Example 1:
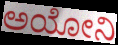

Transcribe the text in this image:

ಅಯೋನಿ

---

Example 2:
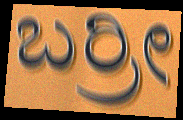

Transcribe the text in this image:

ಬರ್ರೀ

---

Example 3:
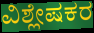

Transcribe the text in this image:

ವಿಶ್ಲೇಷಕರ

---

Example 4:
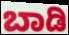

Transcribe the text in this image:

ಬಾಡಿ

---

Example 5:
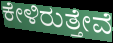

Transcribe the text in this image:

ಕೇಳಿರುತ್ತೇವೆ